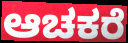
ಆಚಕರೆ